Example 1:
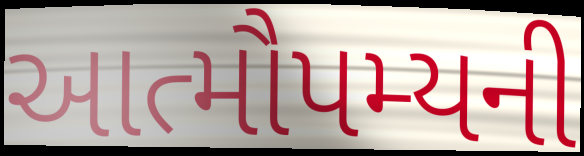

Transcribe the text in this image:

આત્મૌપમ્યની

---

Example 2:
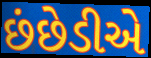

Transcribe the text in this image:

છંછેડીએ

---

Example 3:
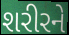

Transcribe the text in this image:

શરીરને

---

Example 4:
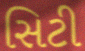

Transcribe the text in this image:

સિટી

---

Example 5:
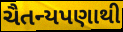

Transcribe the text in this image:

ચૈતન્યપણાથી